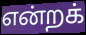
என்றக்